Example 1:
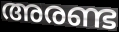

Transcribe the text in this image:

അരണ്ട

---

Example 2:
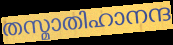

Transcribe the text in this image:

തസ്മാതിഹാനന്ദ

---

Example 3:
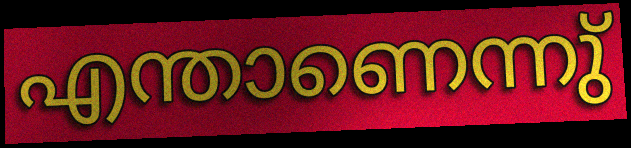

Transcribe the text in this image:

എന്താണെന്നു്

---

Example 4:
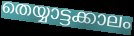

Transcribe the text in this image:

തെയ്യാട്ടക്കാലം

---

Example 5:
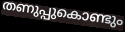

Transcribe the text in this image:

തണുപ്പുകൊണ്ടും